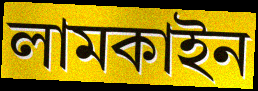
লামকাইন